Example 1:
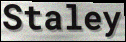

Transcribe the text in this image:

Staley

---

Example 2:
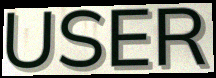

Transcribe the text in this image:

USER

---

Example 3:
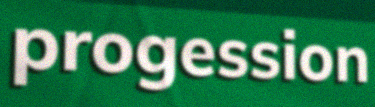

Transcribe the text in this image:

progession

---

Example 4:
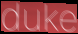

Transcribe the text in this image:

duke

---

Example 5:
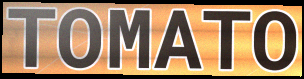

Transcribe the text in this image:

TOMATO